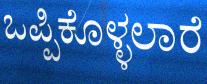
ಒಪ್ಪಿಕೊಳ್ಳಲಾರೆ